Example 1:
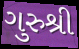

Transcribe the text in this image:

ગુરુશ્રી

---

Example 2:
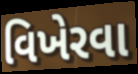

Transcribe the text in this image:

વિખેરવા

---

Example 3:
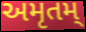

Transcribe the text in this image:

અમૃતમ્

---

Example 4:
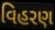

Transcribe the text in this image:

વિહરણ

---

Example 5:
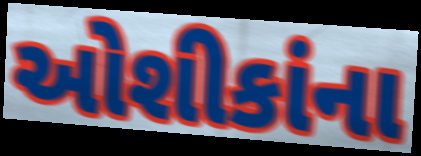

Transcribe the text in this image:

ઓશીકાંના